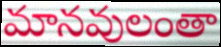
మానవులంతా